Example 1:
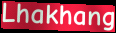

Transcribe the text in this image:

Lhakhang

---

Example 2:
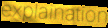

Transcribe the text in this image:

explaination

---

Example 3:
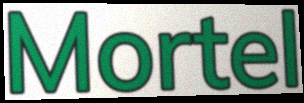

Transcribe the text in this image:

Mortel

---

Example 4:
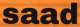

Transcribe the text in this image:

saad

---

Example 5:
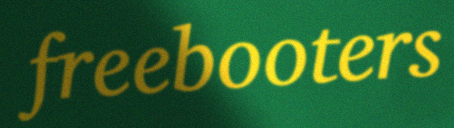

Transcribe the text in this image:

freebooters